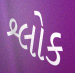
શ્લોક